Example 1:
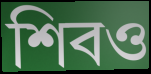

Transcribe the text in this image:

শিবও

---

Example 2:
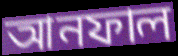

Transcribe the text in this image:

আনফাল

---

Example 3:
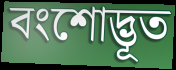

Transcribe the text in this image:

বংশোদ্ভূত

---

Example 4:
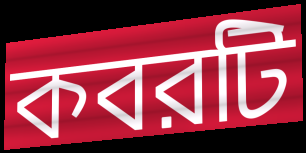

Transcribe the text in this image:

কবরটি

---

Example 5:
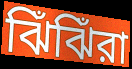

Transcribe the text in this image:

ঝিঁঝিঁরা